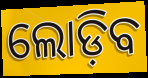
ଲୋଡ଼ିବ